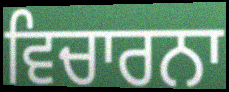
ਵਿਚਾਰਨਾ